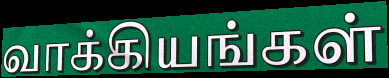
வாக்கியங்கள்